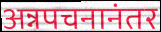
अन्नपचनानंतर